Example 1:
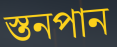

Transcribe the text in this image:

স্তনপান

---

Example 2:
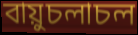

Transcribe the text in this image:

বায়ুচলাচল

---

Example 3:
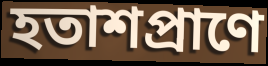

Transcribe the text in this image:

হতাশপ্রাণে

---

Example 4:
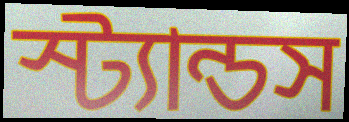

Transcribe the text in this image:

স্ট্যান্ডস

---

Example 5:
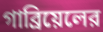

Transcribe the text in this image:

গাব্রিয়েলের